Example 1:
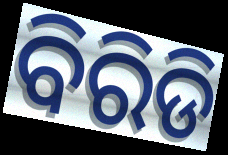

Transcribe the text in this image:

ବିରିଡି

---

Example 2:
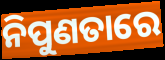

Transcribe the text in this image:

ନିପୁଣତାରେ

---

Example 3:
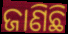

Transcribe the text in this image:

ଜାଣିଛି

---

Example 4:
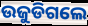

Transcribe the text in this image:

ଉଜୁଡିଗଲେ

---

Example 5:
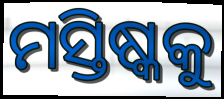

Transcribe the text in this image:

ମସ୍ତିଷ୍କକୁ